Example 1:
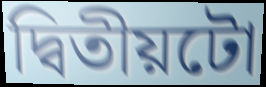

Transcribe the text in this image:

দ্বিতীয়টো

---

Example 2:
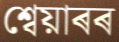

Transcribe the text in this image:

শ্বেয়াৰৰ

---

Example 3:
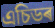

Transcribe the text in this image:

এচিডৰ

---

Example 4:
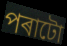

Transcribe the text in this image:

পৰাটো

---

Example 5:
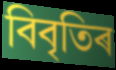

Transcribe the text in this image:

বিবৃতিৰ